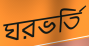
ঘরভর্তি